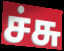
ச்சு